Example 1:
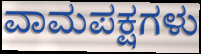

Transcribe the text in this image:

ವಾಮಪಕ್ಷಗಳು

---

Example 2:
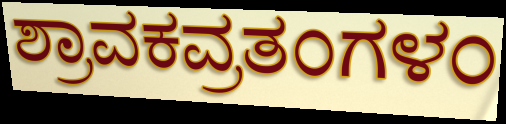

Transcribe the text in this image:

ಶ್ರಾವಕವ್ರತಂಗಳಂ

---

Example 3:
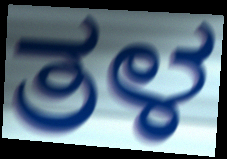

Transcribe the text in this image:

ತಳ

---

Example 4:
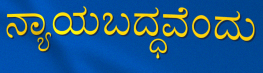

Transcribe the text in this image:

ನ್ಯಾಯಬದ್ಧವೆಂದು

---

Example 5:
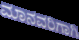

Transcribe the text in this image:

ಮಾನವರಿಗಾಗಿ